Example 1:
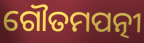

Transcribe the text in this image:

ଗୌତମପତ୍ନୀ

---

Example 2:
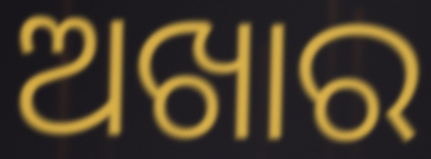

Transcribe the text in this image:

ଅଖାର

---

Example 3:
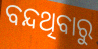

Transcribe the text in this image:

ବନ୍ଦଥିବାରୁ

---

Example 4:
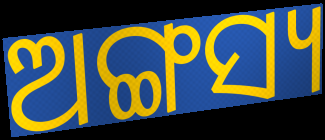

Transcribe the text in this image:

ଅଙ୍ଗସ୍ୟ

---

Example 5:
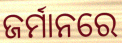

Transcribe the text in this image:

ଜର୍ମାନରେ